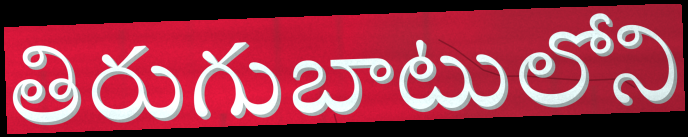
తిరుగుబాటులోని